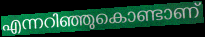
എന്നറിഞ്ഞുകൊണ്ടാണ്